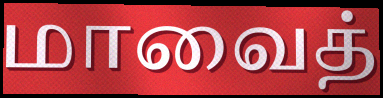
மாவைத்